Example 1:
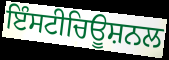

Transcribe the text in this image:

ਇੰਸਟੀਚਿਊਸ਼ਨਲ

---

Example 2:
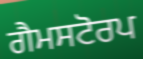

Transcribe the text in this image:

ਗੈਮਸਟੋਰਪ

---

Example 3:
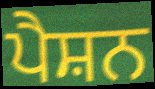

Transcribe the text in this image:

ਪੈਸ਼ਨ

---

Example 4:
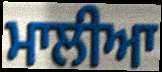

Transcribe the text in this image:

ਮਾਲੀਆ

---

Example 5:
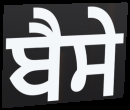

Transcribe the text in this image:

ਬੈਸੇ